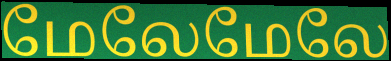
மேலேமேலே